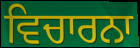
ਵਿਚਾਰਨਾ